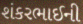
શંકરભાઈની